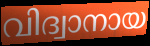
വിദ്വാനായ